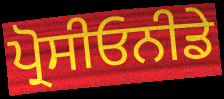
ਪ੍ਰੋਸੀਓਨੀਡੇ